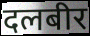
दलबीर